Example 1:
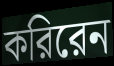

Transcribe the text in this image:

করিরেন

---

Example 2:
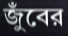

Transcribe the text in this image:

জুঁবের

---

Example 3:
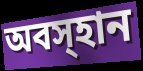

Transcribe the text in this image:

অবস্হান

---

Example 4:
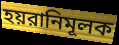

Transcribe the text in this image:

হয়রানিমূলক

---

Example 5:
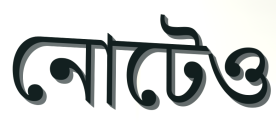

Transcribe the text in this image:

নোটেও